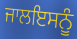
ਜਾਲਇਸਨੂੰ